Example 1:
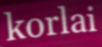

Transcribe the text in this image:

korlai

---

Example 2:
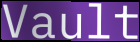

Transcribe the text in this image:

Vault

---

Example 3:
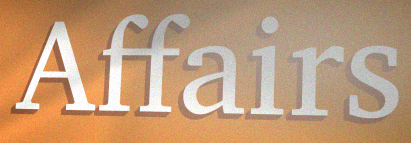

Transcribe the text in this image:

Affairs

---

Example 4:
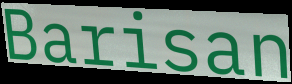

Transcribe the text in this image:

Barisan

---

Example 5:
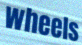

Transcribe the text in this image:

wheels